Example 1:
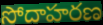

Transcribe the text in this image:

సోదాహరణ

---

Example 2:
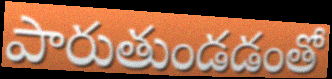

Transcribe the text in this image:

పారుతుండడంతో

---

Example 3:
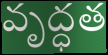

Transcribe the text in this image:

వృద్ధత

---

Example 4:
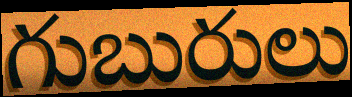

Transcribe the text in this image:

గుబురులు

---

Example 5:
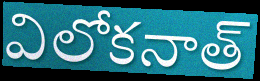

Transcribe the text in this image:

విలోకనాత్